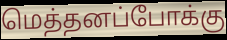
மெத்தனப்போக்கு